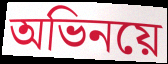
অভিনয়ে